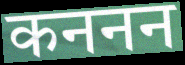
कननन